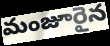
మంజూరైన